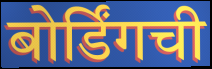
बोर्डिंगची